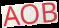
AOB